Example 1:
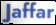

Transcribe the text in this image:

Jaffar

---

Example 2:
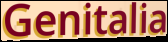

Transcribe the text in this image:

Genitalia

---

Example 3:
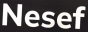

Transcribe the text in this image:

Nesef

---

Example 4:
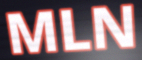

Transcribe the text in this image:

MLN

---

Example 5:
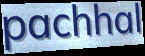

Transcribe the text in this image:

pachhal